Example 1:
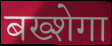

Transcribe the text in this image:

बख्शेगा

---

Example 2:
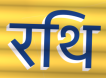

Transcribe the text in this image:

रथि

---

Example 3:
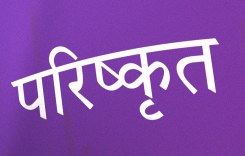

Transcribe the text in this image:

परिष्कृत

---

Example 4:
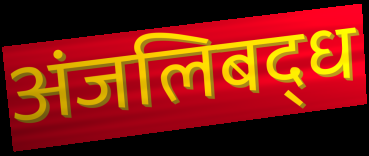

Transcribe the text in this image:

अंजलिबद्ध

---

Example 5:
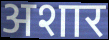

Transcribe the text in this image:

अशार